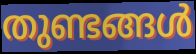
തുണ്ടങ്ങൾ